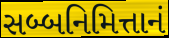
સબ્બનિમિત્તાનં